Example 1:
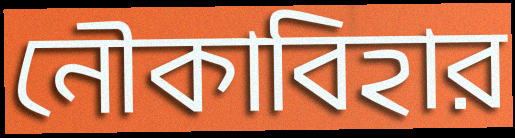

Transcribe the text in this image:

নৌকাবিহার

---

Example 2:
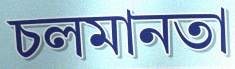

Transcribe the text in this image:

চলমানতা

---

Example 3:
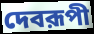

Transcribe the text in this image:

দেবরূপী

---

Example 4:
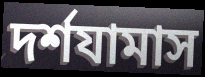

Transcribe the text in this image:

দর্শযামাস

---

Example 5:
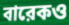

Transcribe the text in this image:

বারেকও